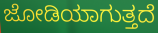
ಜೋಡಿಯಾಗುತ್ತದೆ